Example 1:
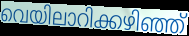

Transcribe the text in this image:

വെയിലാറിക്കഴിഞ്ഞ്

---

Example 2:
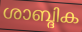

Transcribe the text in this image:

ശാബ്ദിക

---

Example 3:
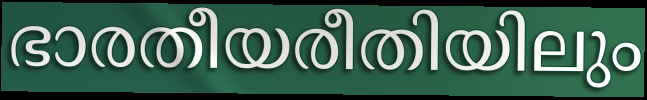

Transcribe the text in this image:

ഭാരതീയരീതിയിലും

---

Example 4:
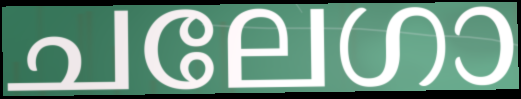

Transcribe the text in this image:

ചലേഗാ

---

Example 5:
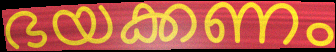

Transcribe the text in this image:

ഭയക്കണം